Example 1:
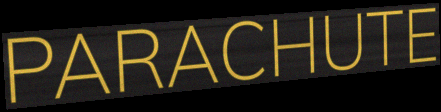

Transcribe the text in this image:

PARACHUTE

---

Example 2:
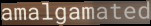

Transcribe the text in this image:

amalgamated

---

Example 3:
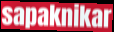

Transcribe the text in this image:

sapaknikar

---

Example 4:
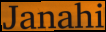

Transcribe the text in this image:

Janahi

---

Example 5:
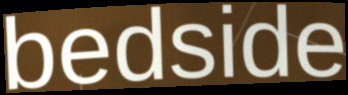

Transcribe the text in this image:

bedside